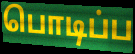
பொடிப்ப